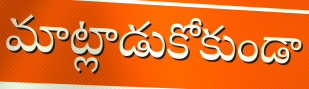
మాట్లాడుకోకుండా